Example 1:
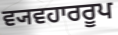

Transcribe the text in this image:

ਵ੍ਯਵਹਾਰਰੂਪ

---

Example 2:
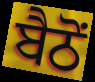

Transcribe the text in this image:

ਬੈਠੋਂ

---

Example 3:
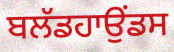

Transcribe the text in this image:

ਬਲੱਡਹਾਉਂਡਸ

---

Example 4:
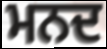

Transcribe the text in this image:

ਮਨਦ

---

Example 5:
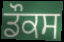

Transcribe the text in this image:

ਡੌਕਸ